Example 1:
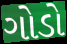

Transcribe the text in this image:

ગોડો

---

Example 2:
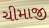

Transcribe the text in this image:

ચીમાજી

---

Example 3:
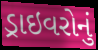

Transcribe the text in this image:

ડ્રાઇવરોનું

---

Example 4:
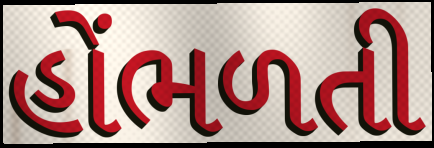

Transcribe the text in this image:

હોંભળતી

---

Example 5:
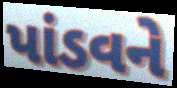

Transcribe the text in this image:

પાંડવને